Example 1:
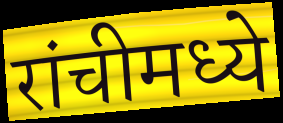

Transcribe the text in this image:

रांचीमध्ये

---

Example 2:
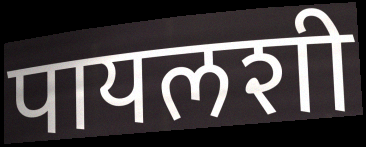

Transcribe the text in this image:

पायलशी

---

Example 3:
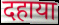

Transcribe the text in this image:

दहाया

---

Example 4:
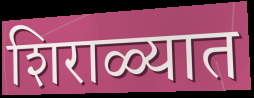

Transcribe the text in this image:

शिराळ्यात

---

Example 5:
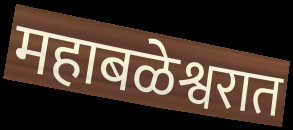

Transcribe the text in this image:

महाबळेश्वरात